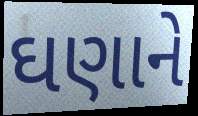
ઘણાને